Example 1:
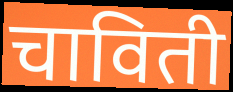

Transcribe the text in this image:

चाविती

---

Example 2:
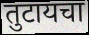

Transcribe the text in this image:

तुटायचा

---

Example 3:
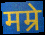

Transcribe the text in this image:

मम्रे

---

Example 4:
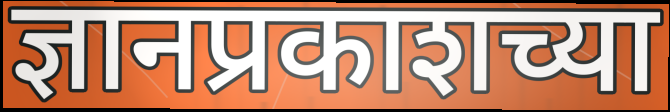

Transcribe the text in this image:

ज्ञानप्रकाशच्या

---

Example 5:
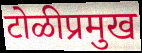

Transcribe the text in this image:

टोळीप्रमुख